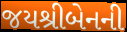
જયશ્રીબેનની